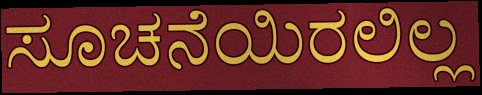
ಸೂಚನೆಯಿರಲಿಲ್ಲ